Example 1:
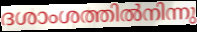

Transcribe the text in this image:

ദശാംശത്തിൽനിന്നു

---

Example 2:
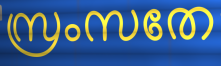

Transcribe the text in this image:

സ്രംസതേ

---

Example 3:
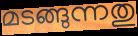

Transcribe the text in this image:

മടങ്ങുന്നതു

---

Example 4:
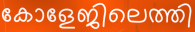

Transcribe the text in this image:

കോളേജിലെത്തി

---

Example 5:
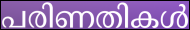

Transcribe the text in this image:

പരിണതികൾ